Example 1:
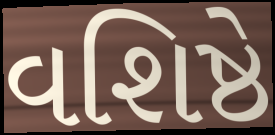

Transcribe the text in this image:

વશિષ્ઠે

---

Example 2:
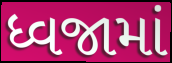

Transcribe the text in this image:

ધ્વજામાં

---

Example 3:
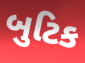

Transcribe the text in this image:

બુટિક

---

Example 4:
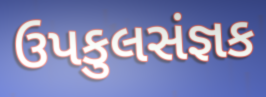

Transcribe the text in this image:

ઉપકુલસંજ્ઞક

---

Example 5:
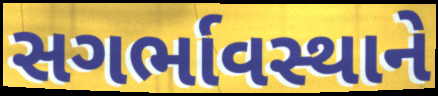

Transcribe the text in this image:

સગર્ભાવસ્થાને